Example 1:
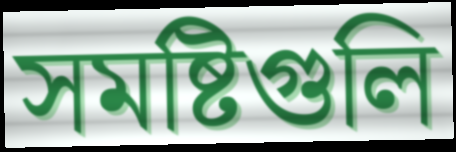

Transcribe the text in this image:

সমষ্টিগুলি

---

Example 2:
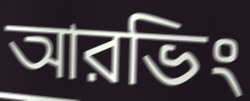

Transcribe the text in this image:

আরভিং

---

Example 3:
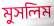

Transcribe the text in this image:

মুসলিম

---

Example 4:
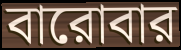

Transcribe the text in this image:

বারোবার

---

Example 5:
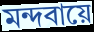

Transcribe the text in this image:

মন্দবায়ে